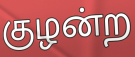
குழன்ற